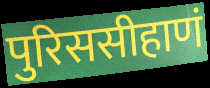
पुरिससीहाणं